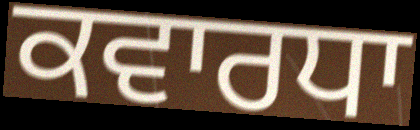
ਕਵਾਰਧਾ